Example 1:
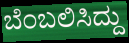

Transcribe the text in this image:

ಬೆಂಬಲಿಸಿದ್ದು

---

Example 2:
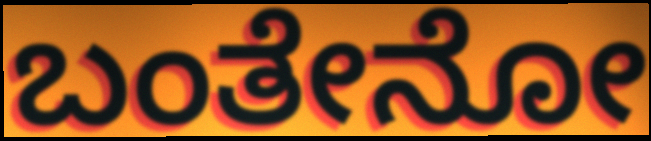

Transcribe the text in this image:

ಬಂತೇನೋ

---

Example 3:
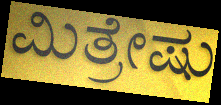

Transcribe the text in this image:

ಮಿತ್ರೇಷು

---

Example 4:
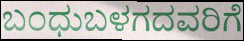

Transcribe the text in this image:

ಬಂಧುಬಳಗದವರಿಗೆ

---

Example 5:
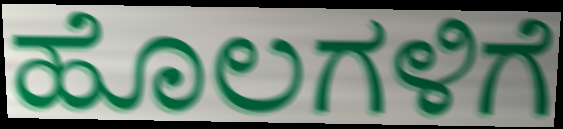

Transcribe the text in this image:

ಹೊಲಗಳಿಗೆ